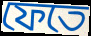
ফেতে